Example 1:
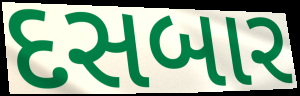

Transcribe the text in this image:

દસબાર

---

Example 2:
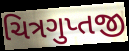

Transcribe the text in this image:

ચિત્રગુપ્તજી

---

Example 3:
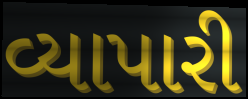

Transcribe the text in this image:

વ્યાપારી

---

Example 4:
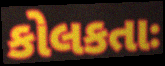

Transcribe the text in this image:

કોલકતાઃ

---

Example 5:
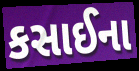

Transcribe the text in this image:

કસાઈના